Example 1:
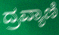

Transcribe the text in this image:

ದ್ರವ್ಯಾಣಿ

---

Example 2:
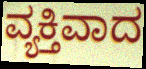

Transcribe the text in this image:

ವ್ಯಕ್ತಿವಾದ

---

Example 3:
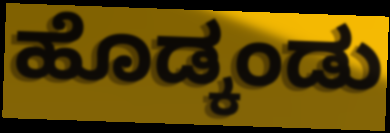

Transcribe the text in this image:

ಹೊಡ್ಕಂಡು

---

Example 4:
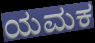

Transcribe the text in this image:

ಯಮಕ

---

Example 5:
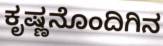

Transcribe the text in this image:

ಕೃಷ್ಣನೊಂದಿಗಿನ